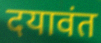
दयावंत